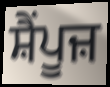
ਸ਼ੈਂਪੂਜ਼